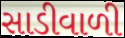
સાડીવાળી